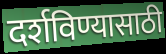
दर्शविण्यासाठी